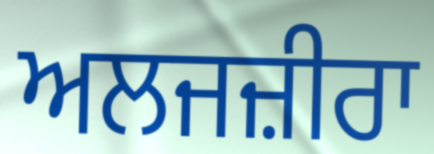
ਅਲਜਜ਼ੀਰਾ